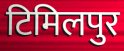
टिमिलपुर